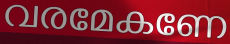
വരമേകണേ